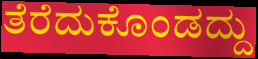
ತೆರೆದುಕೊಂಡದ್ದು